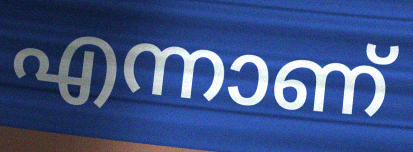
എന്നാണ്